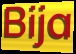
Bija